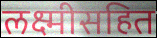
लक्ष्मीसहित